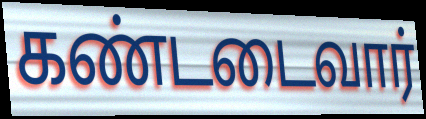
கண்டடைவார்